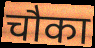
चौका